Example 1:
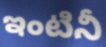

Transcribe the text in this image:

ఇంటినీ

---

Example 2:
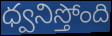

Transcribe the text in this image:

ధ్వనిస్తోంది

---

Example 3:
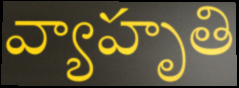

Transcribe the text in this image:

వ్యాహృతి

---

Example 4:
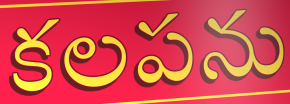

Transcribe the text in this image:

కలపను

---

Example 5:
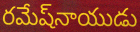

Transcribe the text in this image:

రమేష్‌నాయుడు